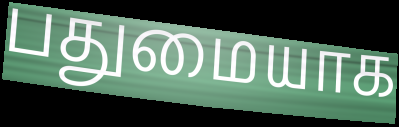
பதுமையாக